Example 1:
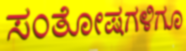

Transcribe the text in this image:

ಸಂತೋಷಗಳಿಗೂ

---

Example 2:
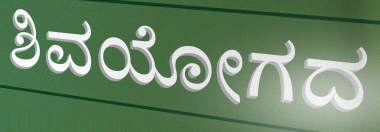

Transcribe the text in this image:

ಶಿವಯೋಗದ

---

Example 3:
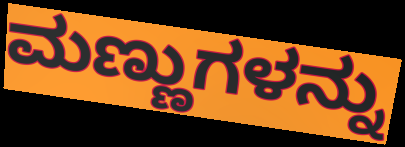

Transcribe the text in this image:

ಮಣ್ಣುಗಳನ್ನು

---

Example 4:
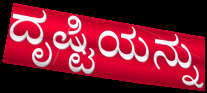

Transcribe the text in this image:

ದೃಷ್ಟಿಯನ್ನು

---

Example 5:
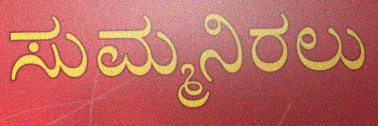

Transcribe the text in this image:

ಸುಮ್ಮನಿರಲು